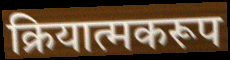
क्रियात्मकरूप